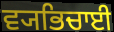
ਵ੍ਯਭਿਚਾਈ